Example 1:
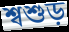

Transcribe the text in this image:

শ্বশুড়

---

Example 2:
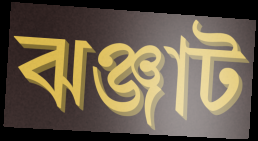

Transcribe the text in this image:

ঝঞ্জাট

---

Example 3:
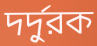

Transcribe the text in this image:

দর্দুরক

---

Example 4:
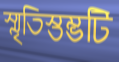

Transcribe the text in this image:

স্মৃতিস্তম্ভটি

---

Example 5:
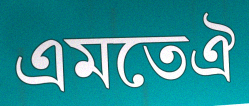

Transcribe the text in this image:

এমতেঐ